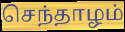
செந்தாழம்